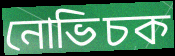
নোভিচক